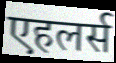
एहलर्स